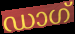
ഡാഗ്